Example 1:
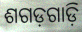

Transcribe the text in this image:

ଶଗଡ଼ଗାଡ଼ି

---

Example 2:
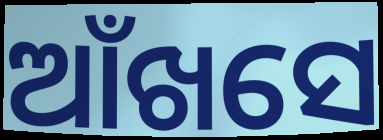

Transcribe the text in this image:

ଆଁଖସେ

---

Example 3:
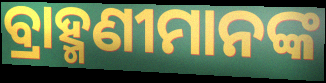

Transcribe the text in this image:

ବ୍ରାହ୍ମଣୀମାନଙ୍କ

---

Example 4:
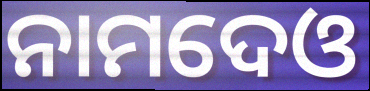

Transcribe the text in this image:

ନାମଦେଓ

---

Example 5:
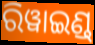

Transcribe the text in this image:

ରିୱାଇଣ୍ଡ୍